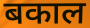
बकाल